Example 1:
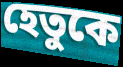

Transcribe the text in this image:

হেতুকে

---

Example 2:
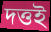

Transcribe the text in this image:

দত্তই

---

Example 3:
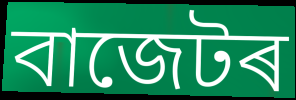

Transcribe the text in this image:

বাজেটৰ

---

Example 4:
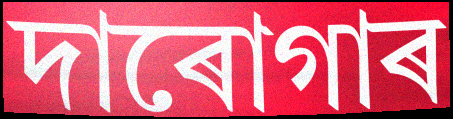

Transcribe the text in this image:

দাৰোগাৰ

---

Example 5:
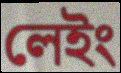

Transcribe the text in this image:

লেইং